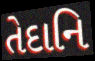
તેદાનિ